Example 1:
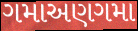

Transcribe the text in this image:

ગમાઅણગમા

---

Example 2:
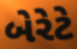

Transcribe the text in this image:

બેરેટે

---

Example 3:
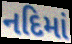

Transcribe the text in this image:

નદિમાં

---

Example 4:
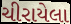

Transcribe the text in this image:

ચીરાયેલા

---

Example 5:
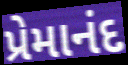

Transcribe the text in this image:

પ્રેમાનંદ